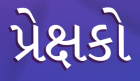
પ્રેક્ષકો